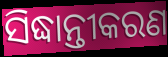
ସିଦ୍ଧାନ୍ତୀକରଣ